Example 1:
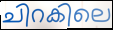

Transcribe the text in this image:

ചിറകിലെ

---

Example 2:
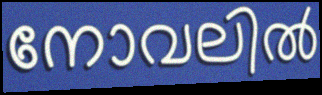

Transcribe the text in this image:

നോവലിൽ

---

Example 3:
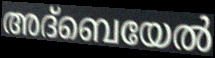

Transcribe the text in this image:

അദ്ബെയേൽ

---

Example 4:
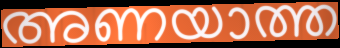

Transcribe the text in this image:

അണയാത്ത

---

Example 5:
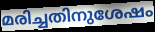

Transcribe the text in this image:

മരിച്ചതിനുശേഷം